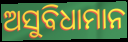
ଅସୁବିଧାମାନ